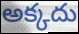
అక్కదు